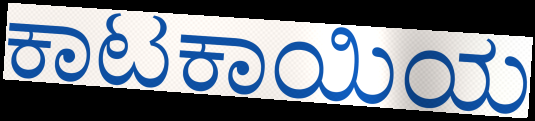
ಕಾಟಕಾಯಿಯ